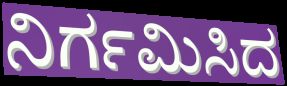
ನಿರ್ಗಮಿಸಿದ